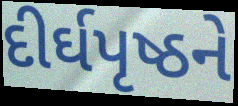
દીર્ઘપૃષ્ઠને